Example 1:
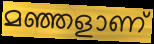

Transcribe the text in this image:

മഞ്ഞളാണ്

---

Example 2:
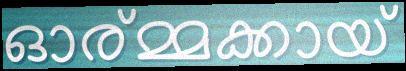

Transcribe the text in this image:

ഓര്മ്മക്കായ്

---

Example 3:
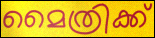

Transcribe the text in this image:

മൈത്രിക്ക്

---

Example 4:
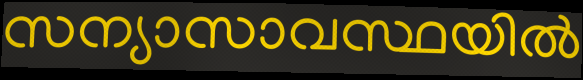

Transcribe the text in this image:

സന്യാസാവസ്ഥയിൽ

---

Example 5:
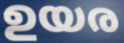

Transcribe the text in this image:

ഉയര